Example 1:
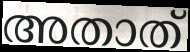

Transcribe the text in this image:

അതാത്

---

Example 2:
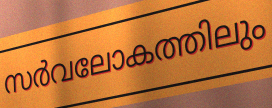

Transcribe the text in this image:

സർവലോകത്തിലും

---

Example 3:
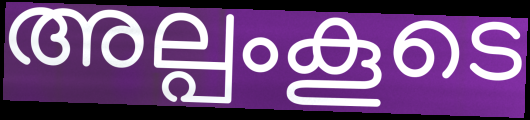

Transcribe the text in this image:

അല്പംകൂടെ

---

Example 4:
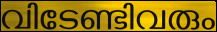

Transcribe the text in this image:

വിടേണ്ടിവരും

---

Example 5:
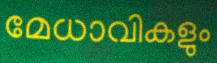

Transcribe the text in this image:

മേധാവികളും